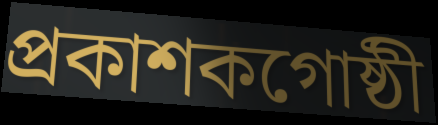
প্রকাশকগোষ্ঠী